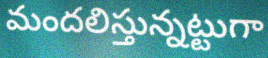
మందలిస్తున్నట్టుగా